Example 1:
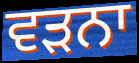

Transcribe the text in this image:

ਵੜਨਾ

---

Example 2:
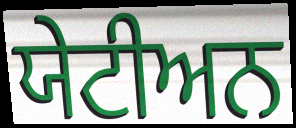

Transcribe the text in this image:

ਯੇਟੀਅਨ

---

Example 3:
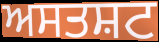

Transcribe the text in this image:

ਅਸਤਸ਼ਟ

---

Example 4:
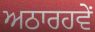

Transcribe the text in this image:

ਅਠਾਰਹਵੇਂ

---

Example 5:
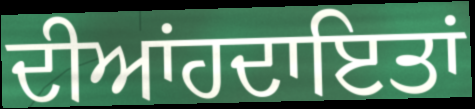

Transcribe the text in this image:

ਦੀਆਂਹਦਾਇਤਾਂ